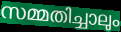
സമ്മതിച്ചാലും